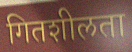
गितशीलता